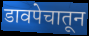
डावपेचातून